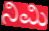
ನಿಮಿ